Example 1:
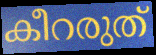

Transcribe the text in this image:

കീറരുത്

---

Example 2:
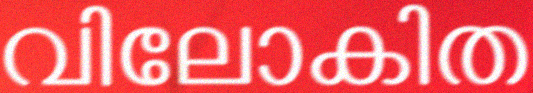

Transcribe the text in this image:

വിലോകിത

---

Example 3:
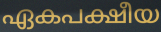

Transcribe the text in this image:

ഏകപക്ഷീയ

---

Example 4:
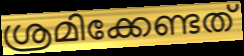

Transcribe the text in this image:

ശ്രമിക്കേണ്ടത്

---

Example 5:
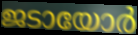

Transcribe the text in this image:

ജടായോർ